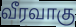
வீரவாகு